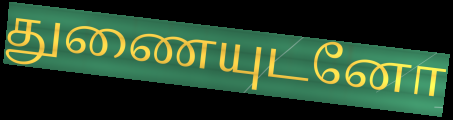
துணையுடனோ